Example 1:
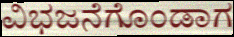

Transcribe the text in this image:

ವಿಭಜನೆಗೊಂಡಾಗ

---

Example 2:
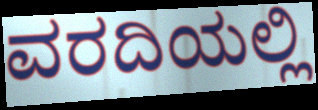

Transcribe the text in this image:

ವರದಿಯಲ್ಲಿ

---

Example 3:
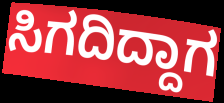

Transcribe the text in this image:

ಸಿಗದಿದ್ದಾಗ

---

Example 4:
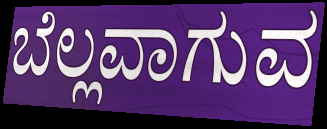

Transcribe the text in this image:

ಬೆಲ್ಲವಾಗುವ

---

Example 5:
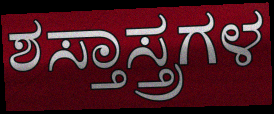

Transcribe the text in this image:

ಶಸ್ತಾಸ್ತ್ರಗಳ